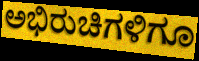
ಅಭಿರುಚಿಗಳಿಗೂ